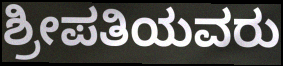
ಶ್ರೀಪತಿಯವರು